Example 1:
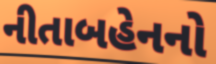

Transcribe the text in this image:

નીતાબહેનનો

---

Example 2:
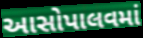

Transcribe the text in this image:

આસોપાલવમાં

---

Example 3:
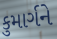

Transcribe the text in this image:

કુમાર્ગને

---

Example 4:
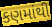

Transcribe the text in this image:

કણમાંથી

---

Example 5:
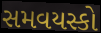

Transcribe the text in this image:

સમવયસ્કો